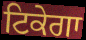
ਟਿਕੇਗਾ